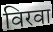
विरवा